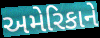
અમેરિકાને